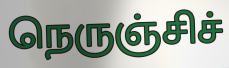
நெருஞ்சிச்